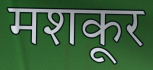
मशकूर